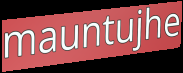
mauntujhe